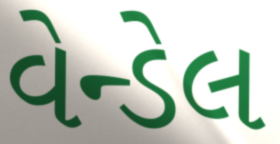
વેન્ડેલ